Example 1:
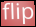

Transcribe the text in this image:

flip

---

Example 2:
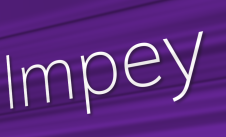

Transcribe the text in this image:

Impey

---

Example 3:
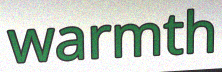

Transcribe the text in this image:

warmth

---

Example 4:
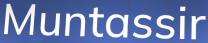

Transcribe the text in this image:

Muntassir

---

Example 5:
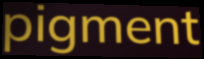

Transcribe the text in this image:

pigment